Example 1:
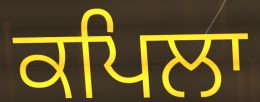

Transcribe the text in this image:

ਕਪਿਲਾ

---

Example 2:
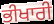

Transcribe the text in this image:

ਭੀਖਾਰੀ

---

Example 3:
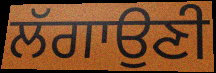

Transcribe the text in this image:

ਲੱਗਾਉਣੀ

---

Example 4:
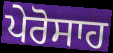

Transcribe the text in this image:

ਪੇਰੋਸਾਹ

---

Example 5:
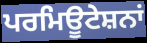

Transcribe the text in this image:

ਪਰਮਿਊਟੇਸ਼ਨਾਂ